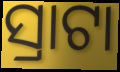
ସ୍ରାଟା